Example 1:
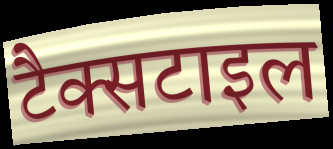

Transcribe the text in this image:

टैक्सटाइल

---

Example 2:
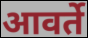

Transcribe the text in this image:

आवर्ते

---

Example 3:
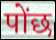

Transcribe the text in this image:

पोंछ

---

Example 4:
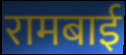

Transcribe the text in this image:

रामबाई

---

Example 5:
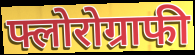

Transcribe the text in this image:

फ्लोरोग्राफी